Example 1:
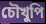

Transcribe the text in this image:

চৌখুপি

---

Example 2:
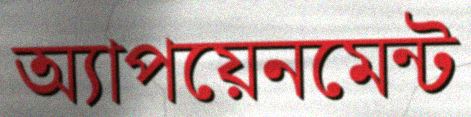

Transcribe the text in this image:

অ্যাপয়েনমেন্ট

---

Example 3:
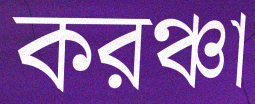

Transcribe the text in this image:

করঞ্চা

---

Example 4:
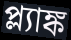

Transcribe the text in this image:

প্ল্যাঙ্ক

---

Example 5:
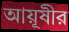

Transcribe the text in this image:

আয়ূষীর